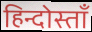
हिन्दोस्ताँ